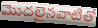
మొదలైనవాటితో